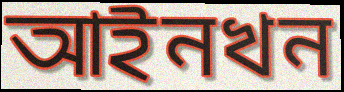
আইনখন